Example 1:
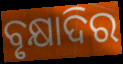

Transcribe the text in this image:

ବୃକ୍ଷାଦିର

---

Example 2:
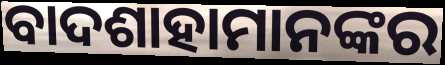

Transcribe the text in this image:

ବାଦଶାହାମାନଙ୍କର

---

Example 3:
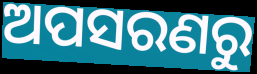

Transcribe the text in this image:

ଅପସରଣରୁ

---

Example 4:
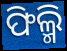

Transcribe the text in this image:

ଫିଲ୍ମି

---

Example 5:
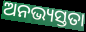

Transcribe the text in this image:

ଅନଭ୍ୟସ୍ତତା